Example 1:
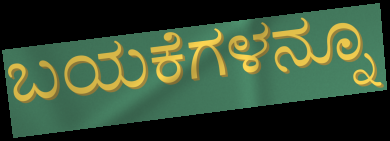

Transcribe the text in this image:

ಬಯಕೆಗಳನ್ನೂ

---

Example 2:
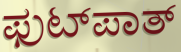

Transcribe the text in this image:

ಫುಟ್‍ಪಾತ್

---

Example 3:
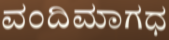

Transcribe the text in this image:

ವಂದಿಮಾಗಧ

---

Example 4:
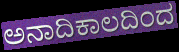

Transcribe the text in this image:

ಅನಾದಿಕಾಲದಿಂದ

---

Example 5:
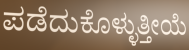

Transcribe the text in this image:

ಪಡೆದುಕೊಳ್ಳುತ್ತೀಯೆ